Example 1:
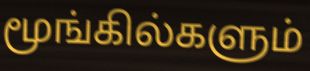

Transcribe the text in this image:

மூங்கில்களும்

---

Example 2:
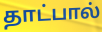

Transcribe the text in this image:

தாட்பால்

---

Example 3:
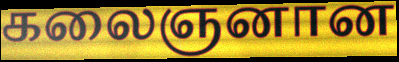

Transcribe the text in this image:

கலைஞனான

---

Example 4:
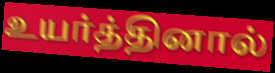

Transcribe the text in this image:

உயர்த்தினால்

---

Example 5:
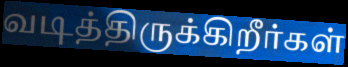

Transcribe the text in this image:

வடித்திருக்கிறீர்கள்